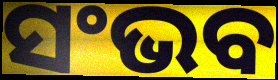
ସଂଭବ